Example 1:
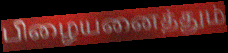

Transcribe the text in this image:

பிழையனைத்தும்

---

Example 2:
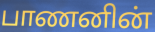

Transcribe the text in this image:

பாணனின்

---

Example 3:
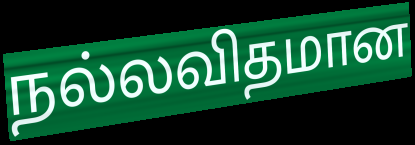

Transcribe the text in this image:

நல்லவிதமான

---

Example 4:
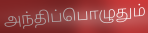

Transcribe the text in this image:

அந்திப்பொழுதும்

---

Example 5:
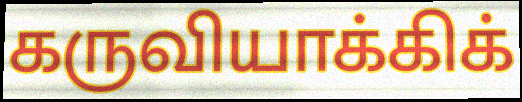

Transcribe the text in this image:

கருவியாக்கிக்